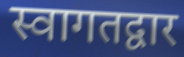
स्वागतद्वार